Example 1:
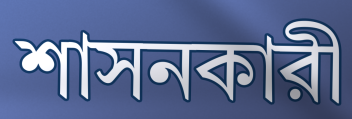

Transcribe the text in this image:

শাসনকারী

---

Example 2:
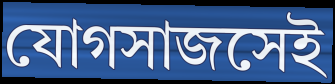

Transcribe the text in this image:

যোগসাজসেই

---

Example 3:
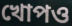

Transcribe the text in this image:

খোপও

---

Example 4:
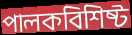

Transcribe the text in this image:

পালকবিশিষ্ট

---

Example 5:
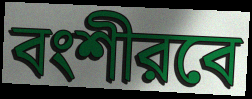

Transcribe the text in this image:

বংশীরবে